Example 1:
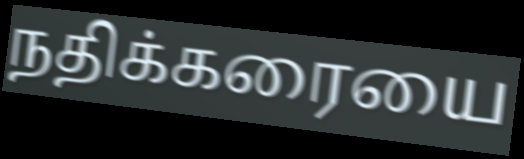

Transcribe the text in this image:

நதிக்கரையை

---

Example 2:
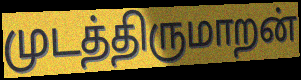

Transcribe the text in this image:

முடத்திருமாறன்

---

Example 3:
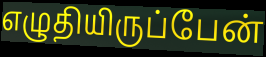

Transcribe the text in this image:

எழுதியிருப்பேன்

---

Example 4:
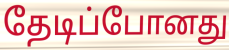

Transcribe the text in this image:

தேடிப்போனது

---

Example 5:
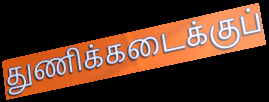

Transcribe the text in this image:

துணிக்கடைக்குப்